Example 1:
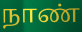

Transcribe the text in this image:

நாண்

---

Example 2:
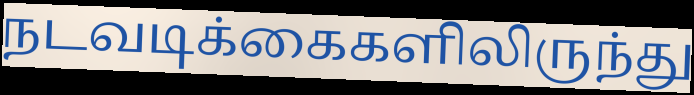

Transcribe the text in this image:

நடவடிக்கைகளிலிருந்து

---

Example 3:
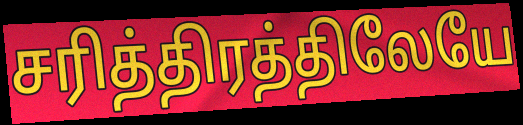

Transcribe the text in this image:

சரித்திரத்திலேயே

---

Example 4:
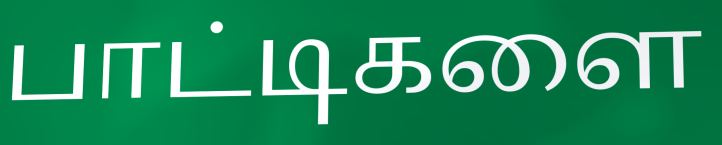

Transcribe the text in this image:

பாட்டிகளை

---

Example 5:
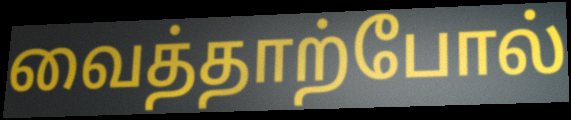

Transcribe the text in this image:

வைத்தாற்போல்